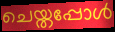
ചെയ്തപ്പോൾ